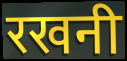
रखनी